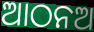
ଆଠନଅ